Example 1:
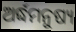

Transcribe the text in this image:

ଅର୍ଦ୍ଧମନୁଷ୍ୟ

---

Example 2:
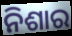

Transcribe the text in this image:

ନିଶାର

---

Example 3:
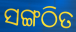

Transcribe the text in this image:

ସଙ୍ଗଠିତ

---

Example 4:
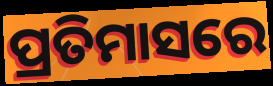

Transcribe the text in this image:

ପ୍ରତିମାସରେ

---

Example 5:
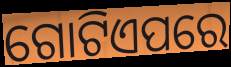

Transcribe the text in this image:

ଗୋଟିଏପରେ